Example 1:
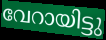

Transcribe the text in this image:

വേറായിട്ടു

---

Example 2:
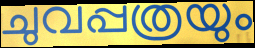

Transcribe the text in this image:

ചുവപ്പത്രയും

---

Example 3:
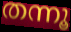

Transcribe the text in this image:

തന്നൂ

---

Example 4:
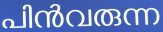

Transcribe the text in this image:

പിൻവരുന്ന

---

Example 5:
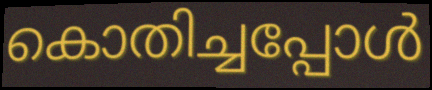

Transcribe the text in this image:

കൊതിച്ചപ്പോൾ